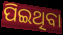
ପିଇଥିବା